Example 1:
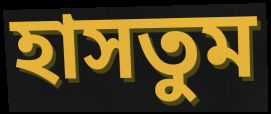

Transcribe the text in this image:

হাসতুম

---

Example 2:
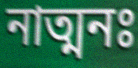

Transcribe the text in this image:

নাত্মনঃ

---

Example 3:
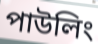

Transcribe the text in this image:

পাউলিং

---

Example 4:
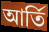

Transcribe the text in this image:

আর্তি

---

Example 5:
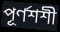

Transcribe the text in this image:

পূর্ণশশী